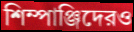
শিম্পাঞ্জিদেরও